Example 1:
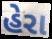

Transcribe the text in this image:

હેરા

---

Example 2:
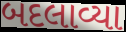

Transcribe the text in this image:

બદલાવ્યા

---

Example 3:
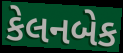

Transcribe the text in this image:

કેલનબેક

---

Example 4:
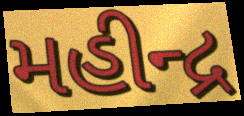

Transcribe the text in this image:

મહીન્દ્ર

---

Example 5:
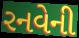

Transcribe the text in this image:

રનવેની